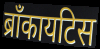
ब्राँकायटिस